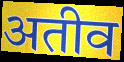
अतीव